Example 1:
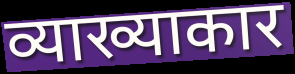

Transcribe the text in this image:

व्याख्याकार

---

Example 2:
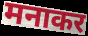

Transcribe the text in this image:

मनाकर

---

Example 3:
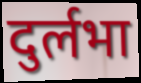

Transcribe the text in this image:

दुर्लभा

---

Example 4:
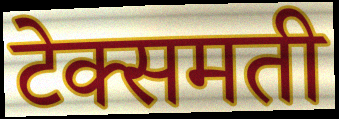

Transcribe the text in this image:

टेक्समती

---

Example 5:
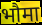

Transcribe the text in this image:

भौमा